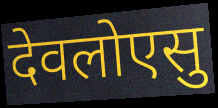
देवलोएसु